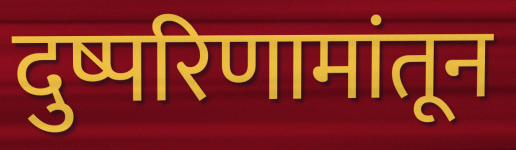
दुष्परिणामांतून